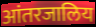
आंतरजालिय